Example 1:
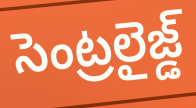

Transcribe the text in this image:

సెంట్రలైజ్డ్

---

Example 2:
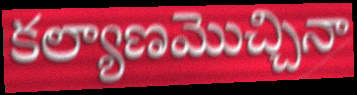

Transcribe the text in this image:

కల్యాణమొచ్చినా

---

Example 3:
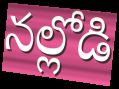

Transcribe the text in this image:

నల్లోడి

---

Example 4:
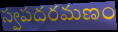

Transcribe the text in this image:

స్వపదరమణం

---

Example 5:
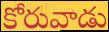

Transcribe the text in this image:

కోరువాడు